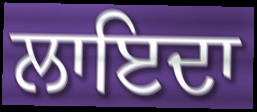
ਲਾਇਦਾ